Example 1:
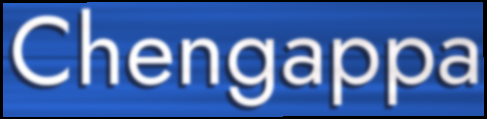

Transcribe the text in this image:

Chengappa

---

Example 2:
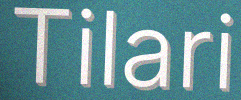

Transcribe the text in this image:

Tilari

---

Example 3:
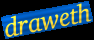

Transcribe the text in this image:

draweth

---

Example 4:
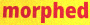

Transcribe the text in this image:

morphed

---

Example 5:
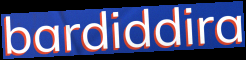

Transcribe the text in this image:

bardiddira